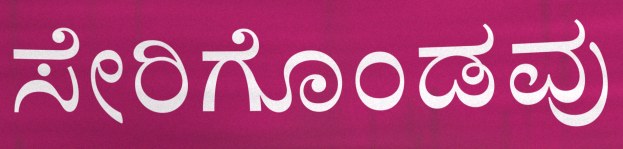
ಸೇರಿಗೊಂಡವು